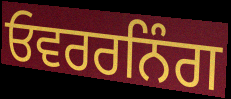
ਓਵਰਰਨਿੰਗ